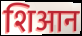
शिआन